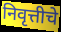
निवृत्तीचे